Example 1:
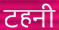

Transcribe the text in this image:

टहनी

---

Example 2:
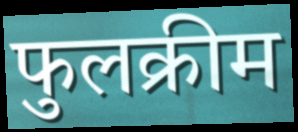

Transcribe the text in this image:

फुलक्रीम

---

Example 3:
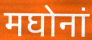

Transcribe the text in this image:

मघोनां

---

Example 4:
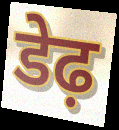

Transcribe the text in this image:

डेढ़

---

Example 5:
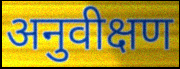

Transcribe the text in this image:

अनुवीक्षण